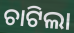
ଚାଟିଲା